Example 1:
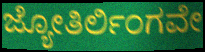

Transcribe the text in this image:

ಜ್ಯೋತಿರ್ಲಿಂಗವೇ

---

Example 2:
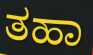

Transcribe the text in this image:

ತಹಾ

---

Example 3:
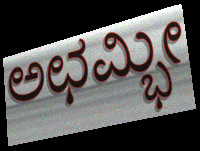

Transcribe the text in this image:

ಅಛಮ್ಭೀ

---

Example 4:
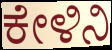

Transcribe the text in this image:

ಕೇಳಿನಿ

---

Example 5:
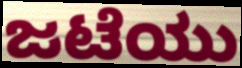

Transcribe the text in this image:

ಜಟೆಯು